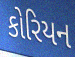
કોરિયન